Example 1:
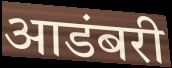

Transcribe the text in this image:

आडंबरी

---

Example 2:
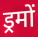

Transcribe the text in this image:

ड्रमों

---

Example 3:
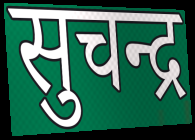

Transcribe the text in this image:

सुचन्द्र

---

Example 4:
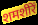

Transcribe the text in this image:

शमशीरें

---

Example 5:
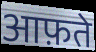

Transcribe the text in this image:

आफ़ते